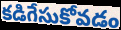
కడిగేసుకోవడం